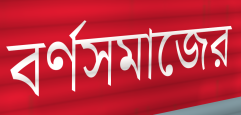
বর্ণসমাজের